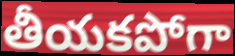
తీయకపోగా